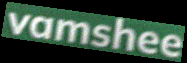
vamshee